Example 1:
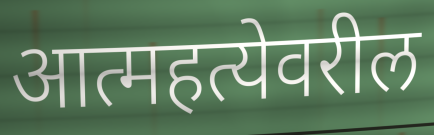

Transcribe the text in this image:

आत्महत्येवरील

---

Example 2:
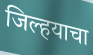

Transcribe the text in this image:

जिल्हयाचा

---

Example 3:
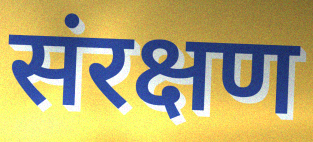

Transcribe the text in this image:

संरक्षण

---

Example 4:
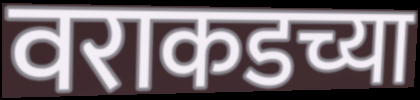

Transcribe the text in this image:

वराकडच्या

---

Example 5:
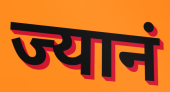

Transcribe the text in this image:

ज्यानं